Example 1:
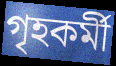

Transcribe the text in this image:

গৃহকর্মী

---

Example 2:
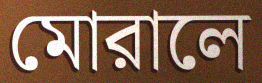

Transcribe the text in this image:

মোরালে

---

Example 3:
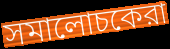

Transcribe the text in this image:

সমালোচকেরা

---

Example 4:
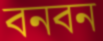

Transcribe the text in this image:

বনবন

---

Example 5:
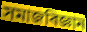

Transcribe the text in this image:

সমাজবিজ্ঞান